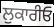
ਲੁਕਾਰੀਓ